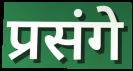
प्रसंगे